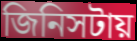
জিনিসটায়